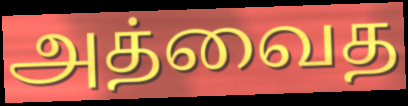
அத்வைத